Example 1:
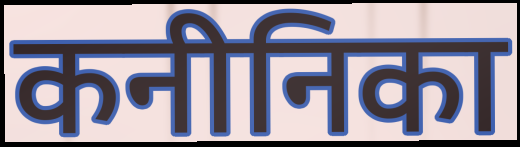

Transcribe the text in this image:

कनीनिका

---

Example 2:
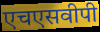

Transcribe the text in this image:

एचएसवीपी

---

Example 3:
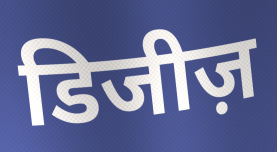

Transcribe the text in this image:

डिजीज़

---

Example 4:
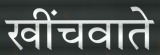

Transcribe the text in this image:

खींचवाते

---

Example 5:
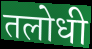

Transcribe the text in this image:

तलोधी